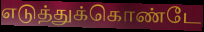
எடுத்துக்கொண்டே